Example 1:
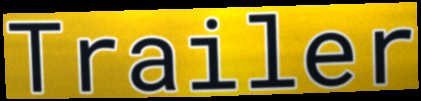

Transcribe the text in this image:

Trailer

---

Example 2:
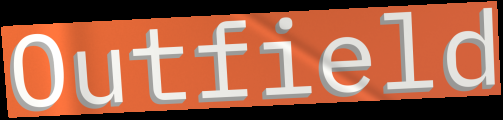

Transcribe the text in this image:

Outfield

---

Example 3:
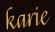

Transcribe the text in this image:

karie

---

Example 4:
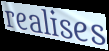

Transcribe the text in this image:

realises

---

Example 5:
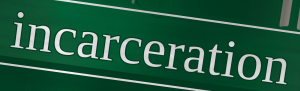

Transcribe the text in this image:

incarceration